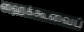
ஹைக்கூவைப்